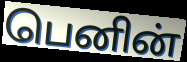
பெனின்